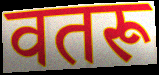
वतरू